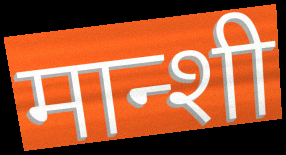
मान्शी